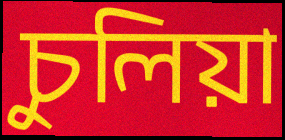
চুলিয়া